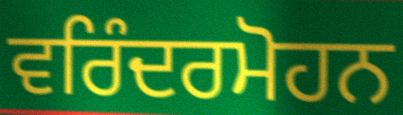
ਵਰਿੰਦਰਮੋਹਨ